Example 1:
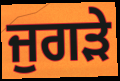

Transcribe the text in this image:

ਜੁਗੜੇ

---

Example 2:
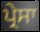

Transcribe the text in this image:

ਪ੍ਰੇਸਾ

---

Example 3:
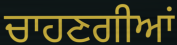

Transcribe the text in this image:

ਚਾਹਣਗੀਆਂ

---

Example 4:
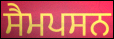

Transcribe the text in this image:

ਸੈਮਪਸਨ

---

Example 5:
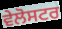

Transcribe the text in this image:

ਵੇਲੋਸਟਰ